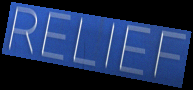
RELIEF